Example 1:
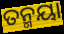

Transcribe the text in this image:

ତନ୍ମୟା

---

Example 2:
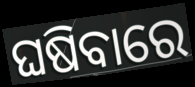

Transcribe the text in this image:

ଘଷିବାରେ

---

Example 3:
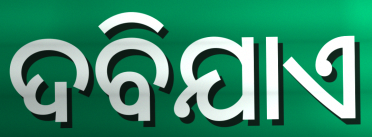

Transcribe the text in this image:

ଦବିଯାଏ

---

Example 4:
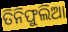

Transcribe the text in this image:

ତିନିଫୁଲିଆ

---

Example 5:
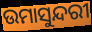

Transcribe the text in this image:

ଉମାସୁନ୍ଦରୀ